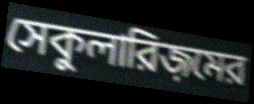
সেকুলারিজ়মের